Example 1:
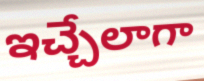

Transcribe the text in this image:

ఇచ్చేలాగా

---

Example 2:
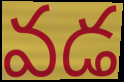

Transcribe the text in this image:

వడ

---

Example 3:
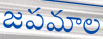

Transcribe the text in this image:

జపమాల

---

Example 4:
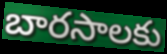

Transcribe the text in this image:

బారసాలకు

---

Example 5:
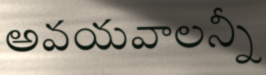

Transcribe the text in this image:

అవయవాలన్నీ